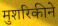
मुशरिकीने